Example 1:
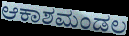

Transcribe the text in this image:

ಆಕಾಶಮಂಡಲ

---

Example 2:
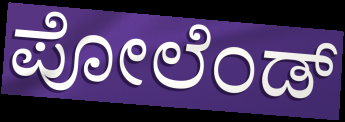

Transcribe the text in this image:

ಪೋಲೆಂಡ್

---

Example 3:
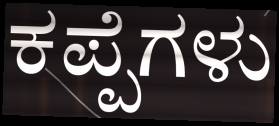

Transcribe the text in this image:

ಕಪ್ಪೆಗಳು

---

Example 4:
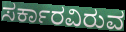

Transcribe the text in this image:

ಸರ್ಕಾರವಿರುವ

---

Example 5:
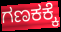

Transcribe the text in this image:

ಗಣಕಕ್ಕೆ